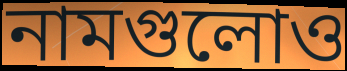
নামগুলোও